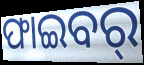
ଫାଇବର୍